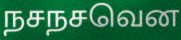
நசநசவென